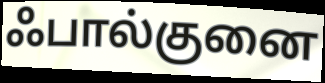
ஃபால்குனை